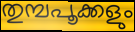
തുമ്പപൂക്കളും